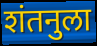
शंतनुला